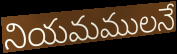
నియమములనే